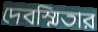
দেবস্মিতার